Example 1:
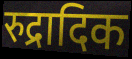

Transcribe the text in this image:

रुद्रादिक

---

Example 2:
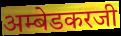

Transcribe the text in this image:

अम्बेडकरजी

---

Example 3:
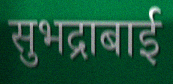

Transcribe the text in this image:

सुभद्राबाई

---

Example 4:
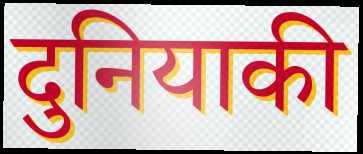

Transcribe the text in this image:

दुनियाकी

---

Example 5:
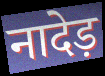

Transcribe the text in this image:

नादेड़